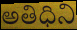
అతిధిని